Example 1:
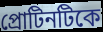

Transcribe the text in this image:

প্রোটিনটিকে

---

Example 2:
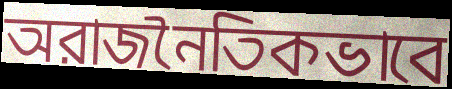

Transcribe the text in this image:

অরাজনৈতিকভাবে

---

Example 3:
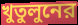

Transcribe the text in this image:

খুতুলুনের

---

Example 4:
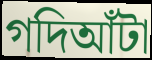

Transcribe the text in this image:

গদিআঁটা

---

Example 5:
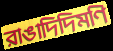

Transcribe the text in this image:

রাঙাদিদিমণি